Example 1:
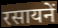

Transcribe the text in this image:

रसायनें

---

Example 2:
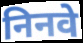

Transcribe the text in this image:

निनवे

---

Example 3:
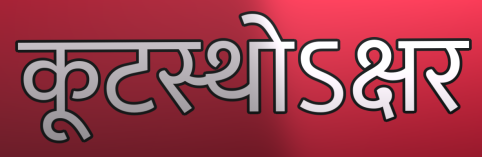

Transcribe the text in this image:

कूटस्थोऽक्षर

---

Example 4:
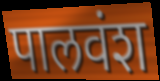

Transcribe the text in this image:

पालवंश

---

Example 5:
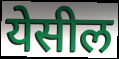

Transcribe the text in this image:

येसील